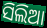
ସିଲିଆ